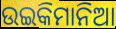
ଉଇକିମାନିଆ